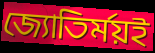
জ্যোতির্ময়ই